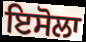
ਇਸੋਲਾ